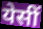
येसीं